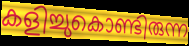
കളിച്ചുകൊണ്ടിരുന്ന